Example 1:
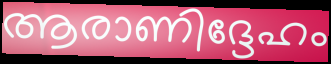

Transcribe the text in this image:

ആരാണിദ്ദേഹം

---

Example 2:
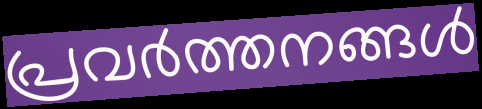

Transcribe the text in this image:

പ്രവർത്തനങ്ങൾ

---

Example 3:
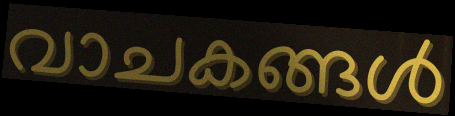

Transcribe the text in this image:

വാചകങ്ങൾ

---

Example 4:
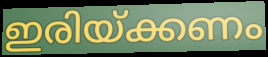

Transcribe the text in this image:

ഇരിയ്ക്കണം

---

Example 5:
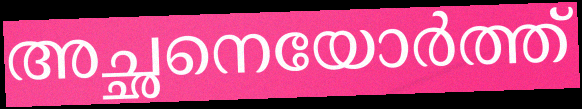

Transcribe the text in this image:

അച്ഛനെയോർത്ത്